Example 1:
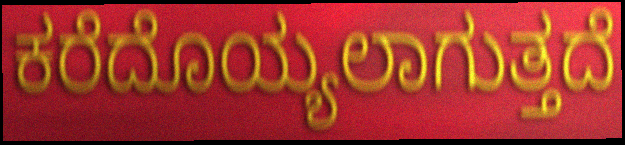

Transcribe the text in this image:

ಕರೆದೊಯ್ಯಲಾಗುತ್ತದೆ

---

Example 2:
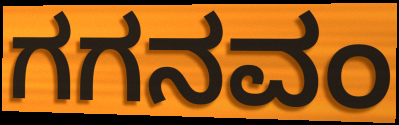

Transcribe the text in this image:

ಗಗನವಂ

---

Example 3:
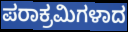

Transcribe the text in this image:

ಪರಾಕ್ರಮಿಗಳಾದ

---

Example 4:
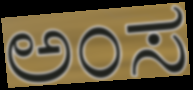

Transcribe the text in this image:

ಅಂಸ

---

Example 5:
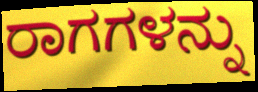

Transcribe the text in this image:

ರಾಗಗಳನ್ನು